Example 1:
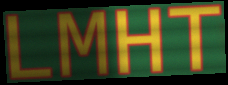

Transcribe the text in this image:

LMHT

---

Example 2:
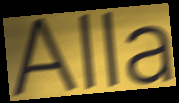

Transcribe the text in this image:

Alla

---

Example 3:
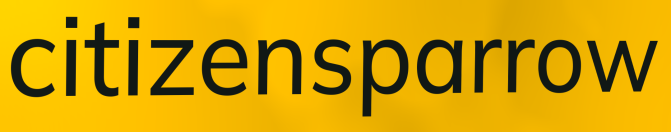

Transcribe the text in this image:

citizensparrow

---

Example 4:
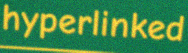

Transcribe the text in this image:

hyperlinked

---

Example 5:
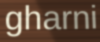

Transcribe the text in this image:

gharni